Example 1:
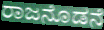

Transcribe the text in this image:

ರಾಜನೊಡನೆ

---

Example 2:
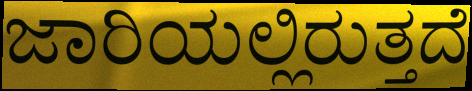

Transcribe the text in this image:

ಜಾರಿಯಲ್ಲಿರುತ್ತದೆ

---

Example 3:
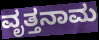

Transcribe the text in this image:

ವೃತ್ತನಾಮ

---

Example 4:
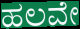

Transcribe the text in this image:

ಹಲವೇ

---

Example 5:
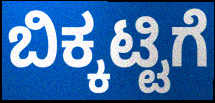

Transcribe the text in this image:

ಬಿಕ್ಕಟ್ಟಿಗೆ